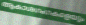
ആകാശഗംഗകളെയും